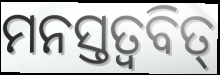
ମନସ୍ତତ୍ଵବିତ୍